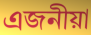
এজনীয়া